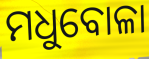
ମଧୁବୋଳା